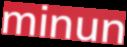
minun